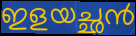
ഇളയച്ഛൻ